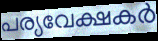
പര്യവേക്ഷകർ